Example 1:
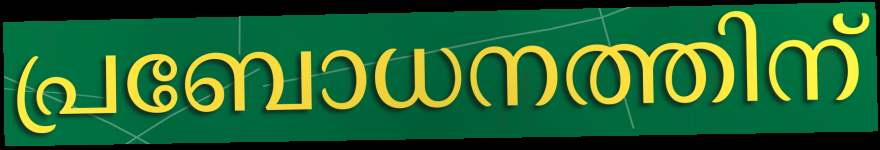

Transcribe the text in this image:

പ്രബോധനത്തിന്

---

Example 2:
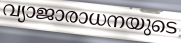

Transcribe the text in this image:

വ്യാജാരാധനയുടെ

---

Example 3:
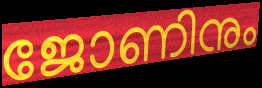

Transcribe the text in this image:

ജോണിനും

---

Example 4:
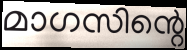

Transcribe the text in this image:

മാഗസിന്റെ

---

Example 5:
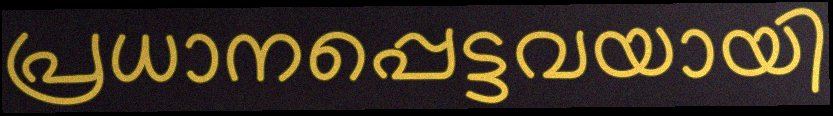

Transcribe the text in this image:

പ്രധാനപ്പെട്ടവയായി